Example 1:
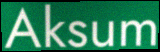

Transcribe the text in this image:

Aksum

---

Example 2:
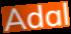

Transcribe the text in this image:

Adal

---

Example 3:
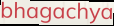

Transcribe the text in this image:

bhagachya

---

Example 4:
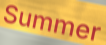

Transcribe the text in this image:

Summer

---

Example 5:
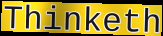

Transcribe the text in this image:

Thinketh